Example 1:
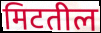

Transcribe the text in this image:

मिटतील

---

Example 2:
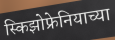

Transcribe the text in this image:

स्किझोफ्रेनियाच्या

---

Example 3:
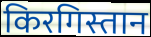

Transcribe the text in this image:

किरगिस्तान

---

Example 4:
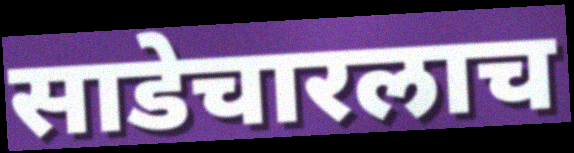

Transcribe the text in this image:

साडेचारलाच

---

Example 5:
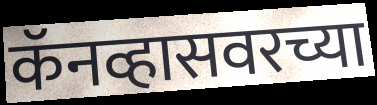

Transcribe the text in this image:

कॅनव्हासवरच्या